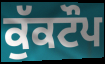
ਕੁੱਕਟੌਪ